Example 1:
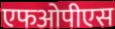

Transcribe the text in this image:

एफओपीएस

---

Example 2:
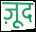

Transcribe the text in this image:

ज़ूद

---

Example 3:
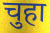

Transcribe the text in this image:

चुहा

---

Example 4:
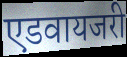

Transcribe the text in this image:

एडवायजरी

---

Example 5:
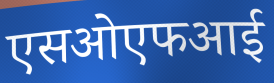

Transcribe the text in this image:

एसओएफआई